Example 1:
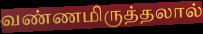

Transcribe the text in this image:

வண்ணமிருத்தலால்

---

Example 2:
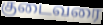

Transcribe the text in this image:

குடைவரை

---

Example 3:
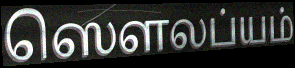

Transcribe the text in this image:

ஸௌலப்யம்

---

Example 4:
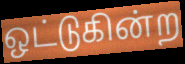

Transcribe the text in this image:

ஒட்டுகின்ற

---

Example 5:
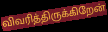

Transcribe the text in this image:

விவரித்திருக்கிறேன்